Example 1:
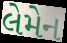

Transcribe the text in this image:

લેમેન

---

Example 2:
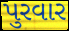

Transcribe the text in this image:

પુરવાર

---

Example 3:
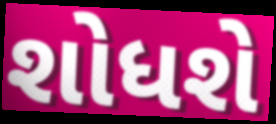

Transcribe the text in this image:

શોધશે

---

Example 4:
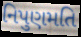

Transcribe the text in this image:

નિપુણમતિ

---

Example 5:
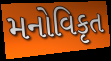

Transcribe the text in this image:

મનોવિકૃત